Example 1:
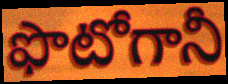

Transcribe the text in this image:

ఫొటోగానీ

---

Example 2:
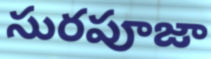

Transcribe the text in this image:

సురపూజా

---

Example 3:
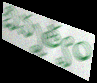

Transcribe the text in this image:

బిన్నత్వం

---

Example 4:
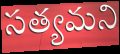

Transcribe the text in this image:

సత్యమని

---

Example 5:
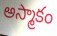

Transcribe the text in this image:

అస్మాకం